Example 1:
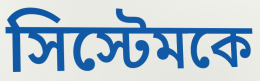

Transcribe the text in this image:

সিস্টেমকে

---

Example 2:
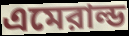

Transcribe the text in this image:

এমেরাল্ড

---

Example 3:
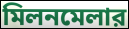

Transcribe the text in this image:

মিলনমেলার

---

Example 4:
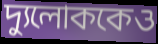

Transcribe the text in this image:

দ্যুলোককেও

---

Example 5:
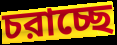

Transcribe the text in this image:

চরাচ্ছে